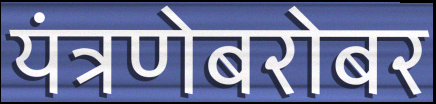
यंत्रणेबरोबर